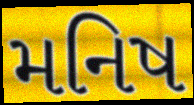
મનિષ